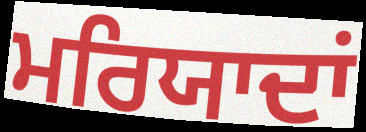
ਮਰਿਯਾਦਾਂ